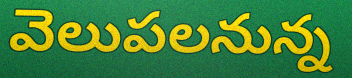
వెలుపలనున్న